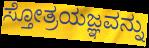
ಸ್ತೋತ್ರಯಜ್ಞವನ್ನು